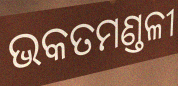
ଭକତମଣ୍ଡଳୀ